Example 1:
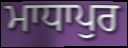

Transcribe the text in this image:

ਮਾਧਾਪੁਰ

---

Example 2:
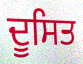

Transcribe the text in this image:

ਦੂਸਿਤ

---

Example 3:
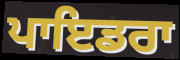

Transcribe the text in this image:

ਪਾਇਡਰਾ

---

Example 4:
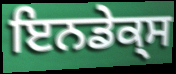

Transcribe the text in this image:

ਇਨਡੇਕ੍ਸ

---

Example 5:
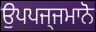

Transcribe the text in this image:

ਉਪਪਜ੍ਜਮਾਨੋ